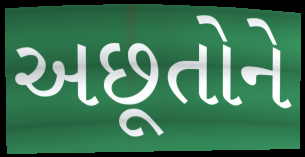
અછૂતોને